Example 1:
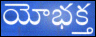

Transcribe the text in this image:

యోభక్త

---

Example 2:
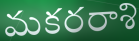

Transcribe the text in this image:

మకరరాశి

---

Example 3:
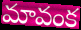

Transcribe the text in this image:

మావంక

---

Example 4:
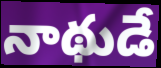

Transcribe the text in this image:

నాథుడే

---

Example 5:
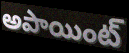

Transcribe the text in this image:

అపాయింట్